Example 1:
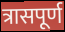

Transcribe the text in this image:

त्रासपूर्ण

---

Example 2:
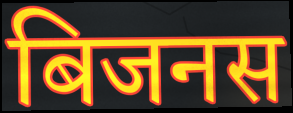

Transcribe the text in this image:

बिजनस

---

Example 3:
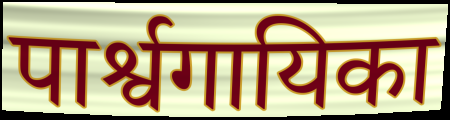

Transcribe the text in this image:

पार्श्वगायिका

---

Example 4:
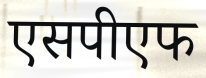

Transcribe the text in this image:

एसपीएफ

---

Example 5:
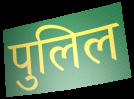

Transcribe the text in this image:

पुलिल